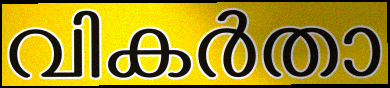
വികർതാ